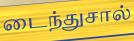
டைந்துசால்